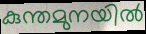
കുന്തമുനയിൽ